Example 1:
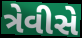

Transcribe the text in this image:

ત્રેવીસે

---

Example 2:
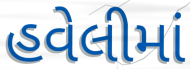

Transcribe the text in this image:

હવેલીમાં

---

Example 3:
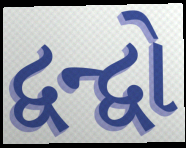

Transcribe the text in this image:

દ્વન્દ્વો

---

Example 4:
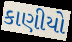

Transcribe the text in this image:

કાણીયો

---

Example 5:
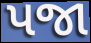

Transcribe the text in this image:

પજા